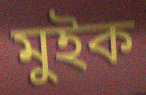
মুইক